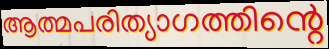
ആത്മപരിത്യാഗത്തിന്റെ